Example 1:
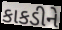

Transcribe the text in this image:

કાકડીને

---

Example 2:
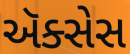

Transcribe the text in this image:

ઍક્સેસ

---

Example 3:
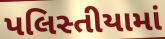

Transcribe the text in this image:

પલિસ્તીયામાં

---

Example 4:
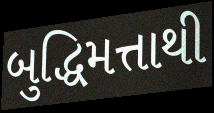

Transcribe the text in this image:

બુદ્ધિમત્તાથી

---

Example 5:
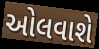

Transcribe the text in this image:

ઓલવાશે